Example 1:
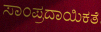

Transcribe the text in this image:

ಸಾಂಪ್ರದಾಯಿಕತೆ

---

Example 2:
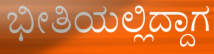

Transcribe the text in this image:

ಭೀತಿಯಲ್ಲಿದ್ದಾಗ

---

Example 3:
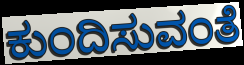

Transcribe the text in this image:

ಕುಂದಿಸುವಂತೆ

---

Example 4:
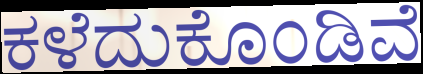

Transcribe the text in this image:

ಕಳೆದುಕೊಂಡಿವೆ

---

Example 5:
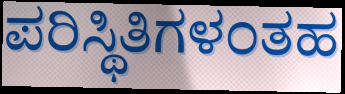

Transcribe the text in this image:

ಪರಿಸ್ಥಿತಿಗಳಂತಹ